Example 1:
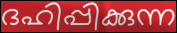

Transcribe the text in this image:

ദഹിപ്പിക്കുന്ന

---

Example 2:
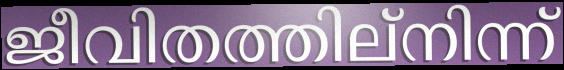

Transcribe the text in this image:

ജീവിതത്തില്നിന്ന്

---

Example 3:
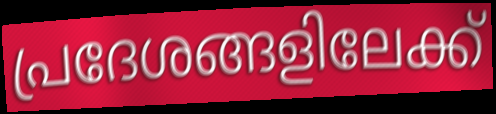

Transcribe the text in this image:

പ്രദേശങ്ങളിലേക്ക്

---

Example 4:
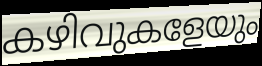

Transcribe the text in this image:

കഴിവുകളേയും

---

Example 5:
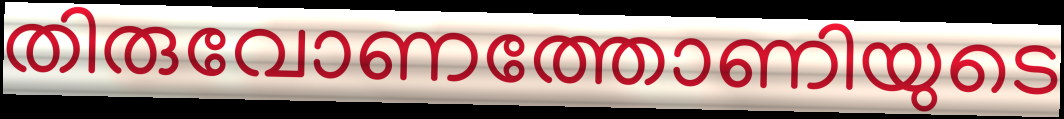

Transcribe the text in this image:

തിരുവോണത്തോണിയുടെ